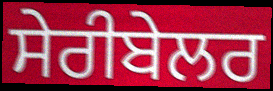
ਸੇਰੀਬੇਲਰ